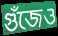
গুঁজেও